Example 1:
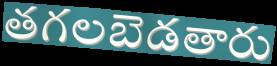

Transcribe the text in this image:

తగలబెడతారు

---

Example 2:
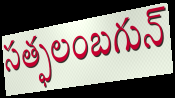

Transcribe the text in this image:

సత్ఫలంబగున్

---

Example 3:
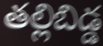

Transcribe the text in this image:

తల్లిబిడ్డ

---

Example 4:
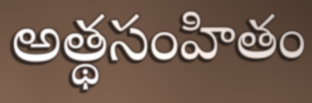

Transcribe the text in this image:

అత్థసంహితం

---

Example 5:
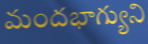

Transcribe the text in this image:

మందభాగ్యుని